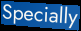
Specially